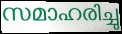
സമാഹരിച്ചു